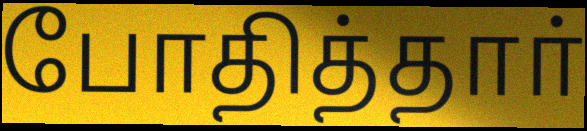
போதித்தார்